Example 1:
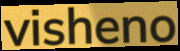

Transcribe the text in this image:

visheno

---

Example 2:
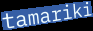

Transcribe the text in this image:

tamariki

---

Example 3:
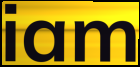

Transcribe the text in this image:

iam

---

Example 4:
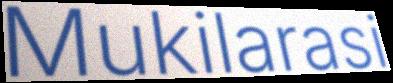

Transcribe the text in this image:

Mukilarasi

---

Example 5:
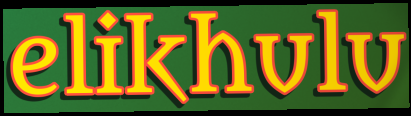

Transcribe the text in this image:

elikhulu